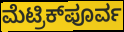
ಮೆಟ್ರಿಕ್‌ಪೂರ್ವ